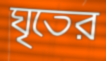
ঘৃতের